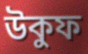
উকুফ